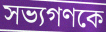
সভ্যগণকে